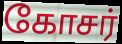
கோசர்